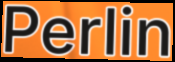
Perlin